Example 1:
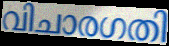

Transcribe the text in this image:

വിചാരഗതി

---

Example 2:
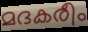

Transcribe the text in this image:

മദകരീം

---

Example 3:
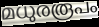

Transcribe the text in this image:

മധുരരൂപം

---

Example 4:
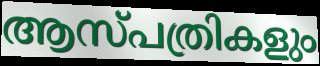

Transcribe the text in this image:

ആസ്പത്രികളും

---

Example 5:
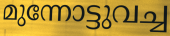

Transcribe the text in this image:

മുന്നോട്ടുവച്ച